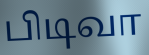
பிடிவா